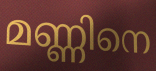
മണ്ണിനെ